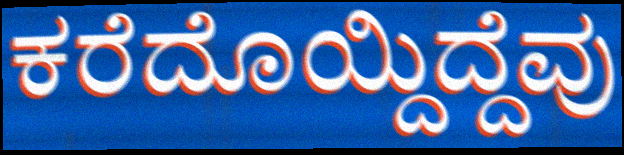
ಕರೆದೊಯ್ದಿದ್ದೆವು